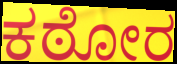
ಕಠೋರ